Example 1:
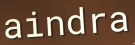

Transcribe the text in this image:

aindra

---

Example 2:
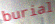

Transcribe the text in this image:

burial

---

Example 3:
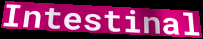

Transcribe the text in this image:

Intestinal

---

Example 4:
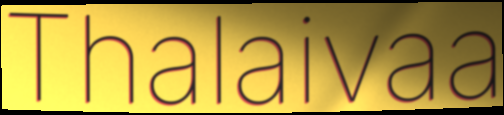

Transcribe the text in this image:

Thalaivaa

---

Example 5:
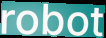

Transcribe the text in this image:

robot